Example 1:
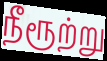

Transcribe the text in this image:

நீரூற்று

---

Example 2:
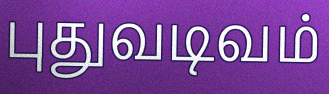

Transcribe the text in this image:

புதுவடிவம்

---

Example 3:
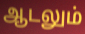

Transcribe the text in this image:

ஆடலும்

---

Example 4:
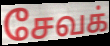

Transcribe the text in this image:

சேவக்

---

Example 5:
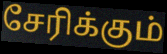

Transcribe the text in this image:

சேரிக்கும்